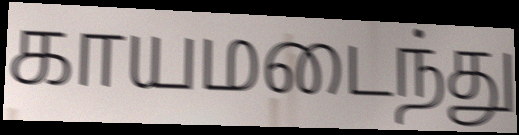
காயமடைந்து